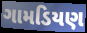
ગામડિયણ